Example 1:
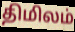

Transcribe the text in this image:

திமிலம்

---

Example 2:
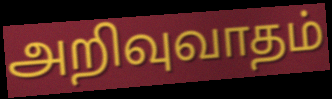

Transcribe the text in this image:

அறிவுவாதம்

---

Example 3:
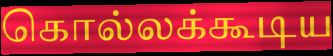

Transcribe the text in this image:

கொல்லக்கூடிய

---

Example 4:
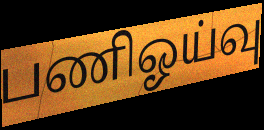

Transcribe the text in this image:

பணிஓய்வு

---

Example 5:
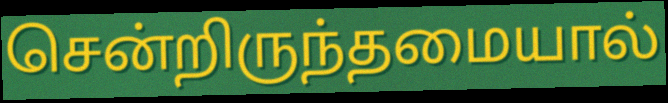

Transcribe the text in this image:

சென்றிருந்தமையால்